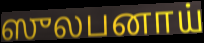
ஸுலபனாய்